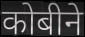
कोबीने